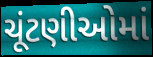
ચૂંટણીઓમાં